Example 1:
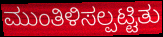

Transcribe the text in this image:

ಮುಂತಿಳಿಸಲ್ಪಟ್ಟಿತು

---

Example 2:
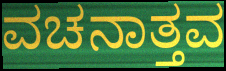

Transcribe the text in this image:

ವಚನಾತ್ತವ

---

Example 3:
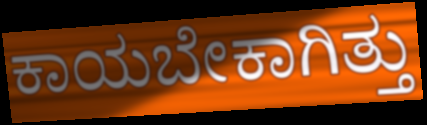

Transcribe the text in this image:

ಕಾಯಬೇಕಾಗಿತ್ತು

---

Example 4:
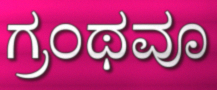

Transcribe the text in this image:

ಗ್ರಂಥವೂ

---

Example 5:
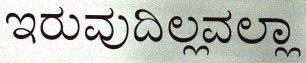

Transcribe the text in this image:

ಇರುವುದಿಲ್ಲವಲ್ಲಾ